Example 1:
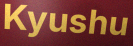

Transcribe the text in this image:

Kyushu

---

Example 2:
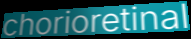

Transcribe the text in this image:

chorioretinal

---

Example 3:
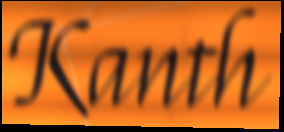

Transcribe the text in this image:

Kanth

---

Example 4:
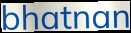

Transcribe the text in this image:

bhatnan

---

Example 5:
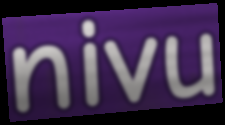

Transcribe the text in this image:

nivu